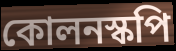
কোলনস্কপি